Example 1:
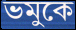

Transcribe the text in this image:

ভমুকে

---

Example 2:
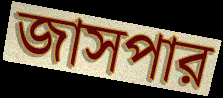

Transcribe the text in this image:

জাসপার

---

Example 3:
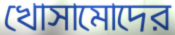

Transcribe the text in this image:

খোসামোদের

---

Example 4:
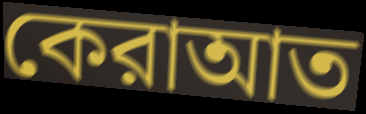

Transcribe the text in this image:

কেরাআত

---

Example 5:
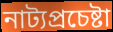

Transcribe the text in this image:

নাট্যপ্রচেষ্টা